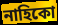
নাহিকো